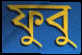
ফুবু